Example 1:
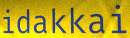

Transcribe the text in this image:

idakkai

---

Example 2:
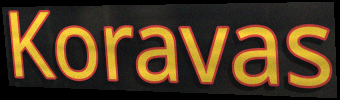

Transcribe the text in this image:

Koravas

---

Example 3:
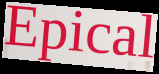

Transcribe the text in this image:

Epical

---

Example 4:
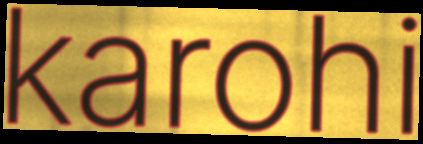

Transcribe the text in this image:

karohi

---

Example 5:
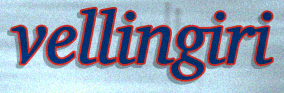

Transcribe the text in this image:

vellingiri